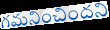
గమనించిందని